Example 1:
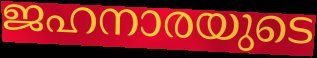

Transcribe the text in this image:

ജഹനാരയുടെ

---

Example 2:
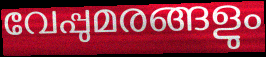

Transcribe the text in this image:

വേപ്പുമരങ്ങളും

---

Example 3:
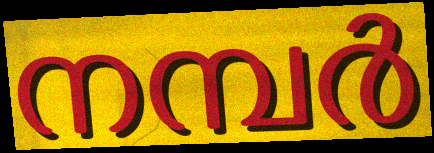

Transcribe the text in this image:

നമ്പർ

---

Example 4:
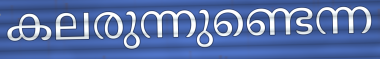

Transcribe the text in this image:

കലരുന്നുണ്ടെന്ന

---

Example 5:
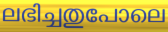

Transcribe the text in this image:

ലഭിച്ചതുപോലെ